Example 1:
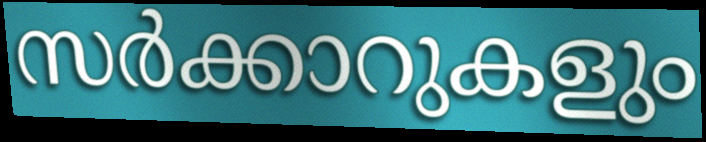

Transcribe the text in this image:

സർക്കാറുകളും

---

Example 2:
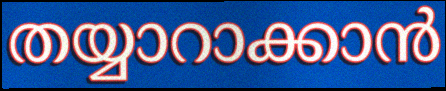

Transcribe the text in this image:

തയ്യാറാക്കാൻ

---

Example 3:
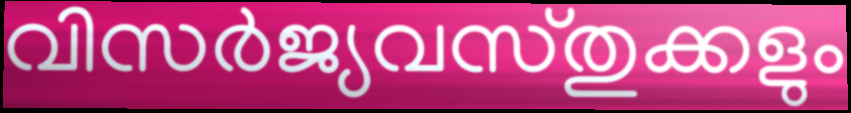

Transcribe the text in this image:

വിസർജ്യവസ്തുക്കളും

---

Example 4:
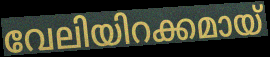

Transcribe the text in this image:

വേലിയിറക്കമായ്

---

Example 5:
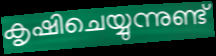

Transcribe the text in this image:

കൃഷിചെയ്യുന്നുണ്ട്